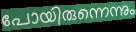
പോയിരുന്നെന്നും